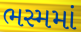
ભસ્મમાં